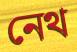
নেথ